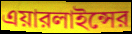
এয়ারলাইন্সের